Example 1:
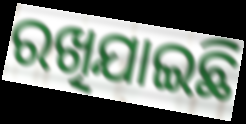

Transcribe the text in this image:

ରଖିଯାଇଛି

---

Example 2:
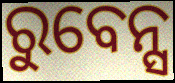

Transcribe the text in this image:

ରୁବେନ୍ସ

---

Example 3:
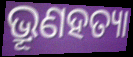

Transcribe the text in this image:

ଭ୍ରୂଣହତ୍ୟା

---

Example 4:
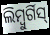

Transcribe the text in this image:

ଲିମ୍ବୁର୍ଗିସ୍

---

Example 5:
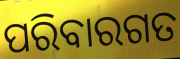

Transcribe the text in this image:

ପରିବାରଗତ